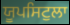
ਯੂਪਸਿਟੁਲਾ